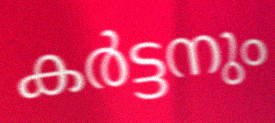
കർട്ടനും